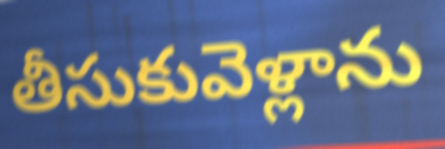
తీసుకువెళ్లాను